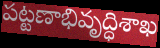
పట్టణాభివృద్ధిశాఖ